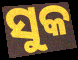
ସୁକ